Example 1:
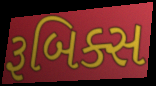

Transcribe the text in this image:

રૂબિક્સ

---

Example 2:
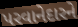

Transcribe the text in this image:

પરવાનેદારને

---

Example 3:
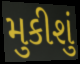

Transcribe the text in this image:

મુકીશું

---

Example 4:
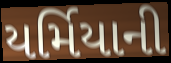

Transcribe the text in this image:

યર્મિયાની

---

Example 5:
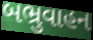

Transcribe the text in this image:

બભ્રુવાહન